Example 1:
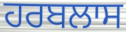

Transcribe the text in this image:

ਹਰਬਲਾਸ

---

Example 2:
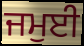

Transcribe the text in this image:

ਜਮੁਈ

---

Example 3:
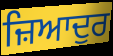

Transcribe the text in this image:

ਜ਼ਿਆਦੁਰ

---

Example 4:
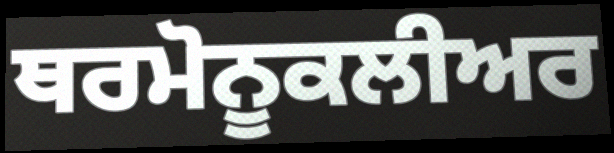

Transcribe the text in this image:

ਥਰਮੋਨੂਕਲੀਅਰ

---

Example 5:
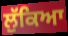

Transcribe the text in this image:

ਲੁੱਕਿਆ